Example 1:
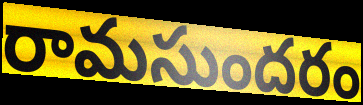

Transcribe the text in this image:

రామసుందరం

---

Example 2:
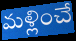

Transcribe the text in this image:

మళ్లించే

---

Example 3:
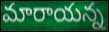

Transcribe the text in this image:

మారాయన్న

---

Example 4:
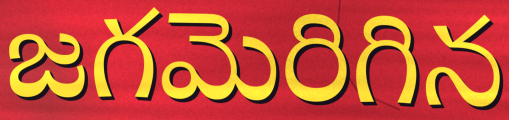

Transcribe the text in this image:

జగమెరిగిన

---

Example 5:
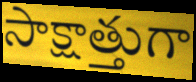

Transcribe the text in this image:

సాక్షాత్తుగా